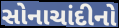
સોનાચાંદીનો